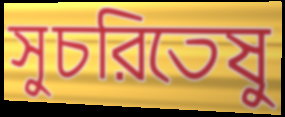
সুচরিতেষু